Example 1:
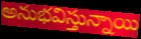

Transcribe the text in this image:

అనుభవిస్తున్నాయి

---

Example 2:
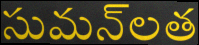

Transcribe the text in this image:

సుమన్‌లత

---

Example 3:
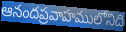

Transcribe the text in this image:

ఆనందప్రవాహములోనిది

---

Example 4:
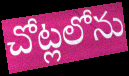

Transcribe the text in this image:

చోట్లలోను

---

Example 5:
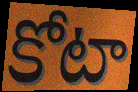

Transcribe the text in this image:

కోటా